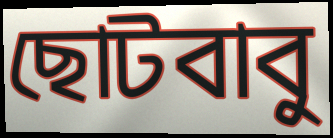
ছোটবাবু